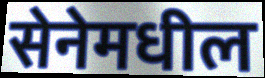
सेनेमधील